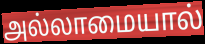
அல்லாமையால்